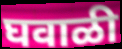
घवाळी